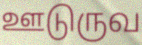
ஊடுருவ